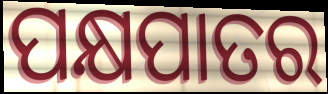
ପକ୍ଷପାତର